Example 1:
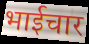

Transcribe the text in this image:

भाईचार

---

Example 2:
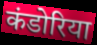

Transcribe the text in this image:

कंडोरिया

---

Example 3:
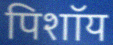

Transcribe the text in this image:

पिशॉय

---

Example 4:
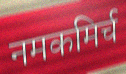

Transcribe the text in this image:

नमकमिर्च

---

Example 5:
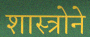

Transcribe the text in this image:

शास्त्रोने